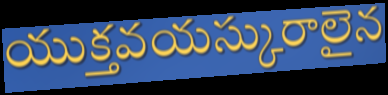
యుక్తవయస్కురాలైన